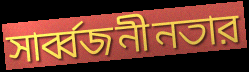
সার্ব্বজনীনতার